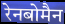
रेनबोमैन